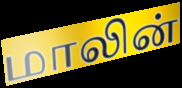
மாலின்